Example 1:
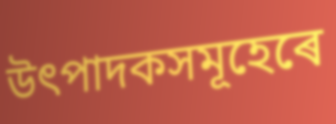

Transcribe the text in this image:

উৎপাদকসমূহেৰে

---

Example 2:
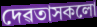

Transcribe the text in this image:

দেৱতাসকলো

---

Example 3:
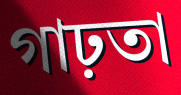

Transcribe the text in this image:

গাঢ়তা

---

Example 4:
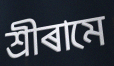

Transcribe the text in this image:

শ্ৰীৰামে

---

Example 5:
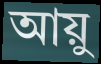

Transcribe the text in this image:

আয়ু